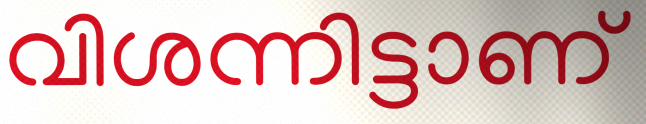
വിശന്നിട്ടാണ്